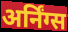
अर्निंग्स